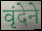
वृंदेने